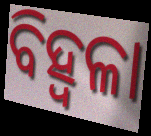
ବିହ୍ଵଳା